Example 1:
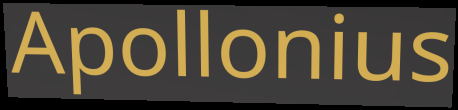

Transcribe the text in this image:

Apollonius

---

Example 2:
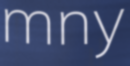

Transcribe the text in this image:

mny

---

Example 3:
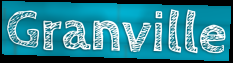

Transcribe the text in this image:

Granville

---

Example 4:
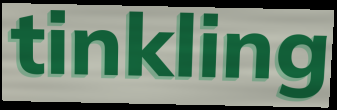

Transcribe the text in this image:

tinkling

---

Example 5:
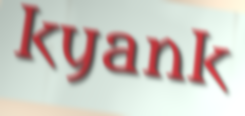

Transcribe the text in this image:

kyank